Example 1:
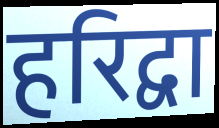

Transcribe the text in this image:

हरिद्वा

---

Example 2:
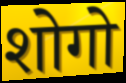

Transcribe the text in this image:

शोगो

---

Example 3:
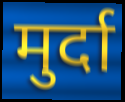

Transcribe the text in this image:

मुर्दा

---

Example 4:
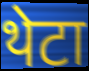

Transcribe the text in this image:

थेटा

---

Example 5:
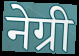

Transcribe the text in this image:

नेग्री